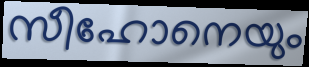
സീഹോനെയും